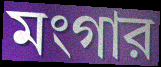
মংগার